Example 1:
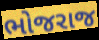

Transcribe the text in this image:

ભોજરાજ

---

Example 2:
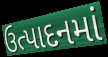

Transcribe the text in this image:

ઉત્પાદનમાં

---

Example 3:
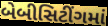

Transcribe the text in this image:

બેબીસિટીંગમાં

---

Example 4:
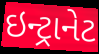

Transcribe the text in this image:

ઇન્ટ્રાનેટ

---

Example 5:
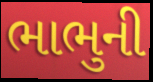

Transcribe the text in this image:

ભાભુની